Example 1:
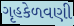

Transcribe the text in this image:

ગૃહકેળવણી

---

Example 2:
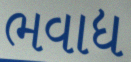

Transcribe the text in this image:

ભવાદ્ય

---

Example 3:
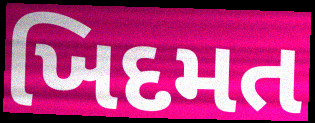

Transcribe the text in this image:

ખિદમત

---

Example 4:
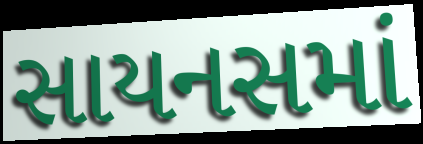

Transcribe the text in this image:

સાયનસમાં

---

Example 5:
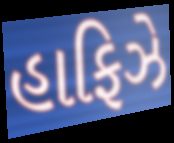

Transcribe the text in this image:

હાફિઝે